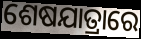
ଶେଷଯାତ୍ରାରେ